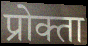
प्रोक्ता